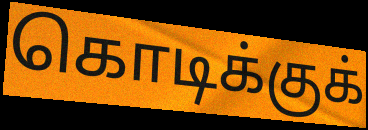
கொடிக்குக்